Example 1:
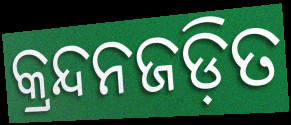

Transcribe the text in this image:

କ୍ରନ୍ଦନଜଡ଼ିତ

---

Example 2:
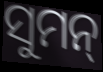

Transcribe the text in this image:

ସୁମନ୍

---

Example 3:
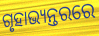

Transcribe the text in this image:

ଗୃହାଭ୍ୟନ୍ତରରେ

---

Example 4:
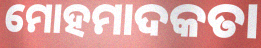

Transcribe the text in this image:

ମୋହମାଦକତା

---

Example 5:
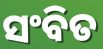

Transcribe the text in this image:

ସଂବିତ